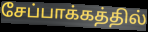
சேப்பாக்கத்தில்